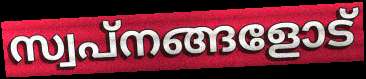
സ്വപ്നങ്ങളോട്